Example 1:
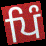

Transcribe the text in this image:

ਪਿੰ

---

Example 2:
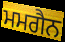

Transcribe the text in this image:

ਮਮਗੈਨ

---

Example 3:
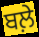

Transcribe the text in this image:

ਬਲ਼ੇ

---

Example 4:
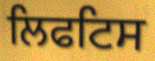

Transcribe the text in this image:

ਲਿਫਟਿਸ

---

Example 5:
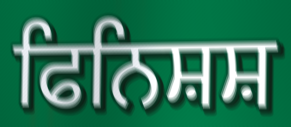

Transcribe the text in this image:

ਫਿਨਿਸ਼ਸ਼